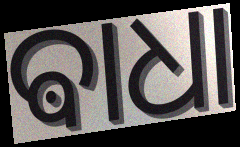
ଵାଧା